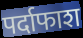
पर्दाफाश